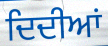
ਦਿਦੀਆਂ